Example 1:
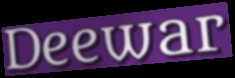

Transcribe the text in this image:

Deewar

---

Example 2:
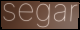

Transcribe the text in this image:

segar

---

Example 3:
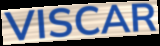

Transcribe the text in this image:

VISCAR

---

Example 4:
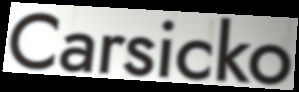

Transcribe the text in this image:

Carsicko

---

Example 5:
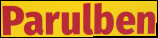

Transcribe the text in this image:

Parulben